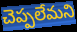
చెప్పలేమని